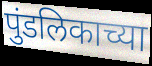
पुंडलिकाच्या